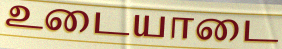
உடையாடை